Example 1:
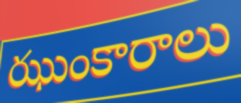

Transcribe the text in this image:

ఝుంకారాలు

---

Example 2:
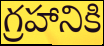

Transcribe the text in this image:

గ్రహానికి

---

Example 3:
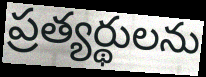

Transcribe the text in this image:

ప్రత్యర్థులను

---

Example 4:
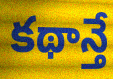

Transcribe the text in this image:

కథాన్తే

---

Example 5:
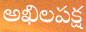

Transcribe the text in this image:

అఖిలపక్ష